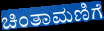
ಚಿಂತಾಮಣಿಗೆ